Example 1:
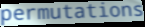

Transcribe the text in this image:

permutations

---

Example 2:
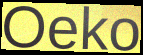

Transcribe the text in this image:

Oeko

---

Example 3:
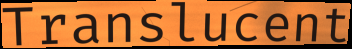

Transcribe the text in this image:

Translucent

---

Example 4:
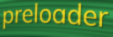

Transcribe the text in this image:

preloader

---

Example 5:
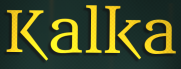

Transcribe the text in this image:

Kalka